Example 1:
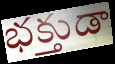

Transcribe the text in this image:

భక్తుడా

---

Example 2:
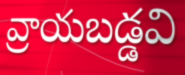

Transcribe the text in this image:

వ్రాయబడ్డవి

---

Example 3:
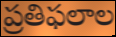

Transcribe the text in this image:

ప్రతిఫలాల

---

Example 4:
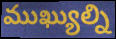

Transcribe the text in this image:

ముఖ్యుల్ని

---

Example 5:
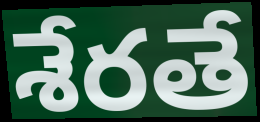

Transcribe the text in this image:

శేరతే